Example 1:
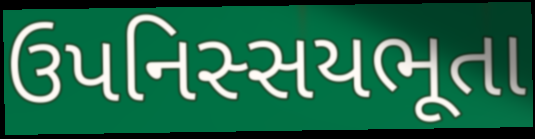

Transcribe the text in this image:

ઉપનિસ્સયભૂતા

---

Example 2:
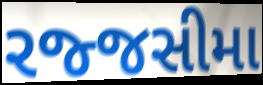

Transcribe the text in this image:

રજ્જસીમા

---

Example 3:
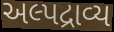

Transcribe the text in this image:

અલ્પદ્રાવ્ય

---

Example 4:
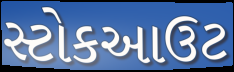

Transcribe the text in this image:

સ્ટોકઆઉટ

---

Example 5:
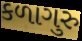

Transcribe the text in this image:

કળાગુરુ